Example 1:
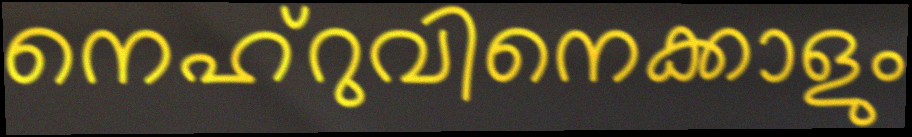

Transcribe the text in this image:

നെഹ്റുവിനെക്കാളും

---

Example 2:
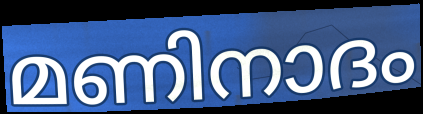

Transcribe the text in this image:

മണിനാദം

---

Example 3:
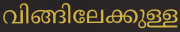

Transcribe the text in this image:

വിങ്ങിലേക്കുള്ള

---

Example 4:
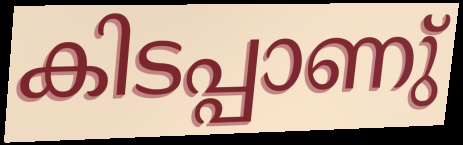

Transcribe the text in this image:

കിടപ്പാണു്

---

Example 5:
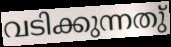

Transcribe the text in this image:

വടിക്കുന്നതു്